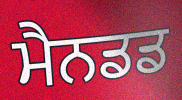
ਮੈਨਡਡ